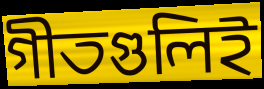
গীতগুলিই